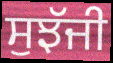
ਸੁਝੱਜੀ